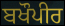
ਬਖੌਪੀਰ